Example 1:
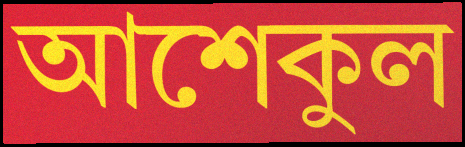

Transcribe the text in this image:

আশেকুল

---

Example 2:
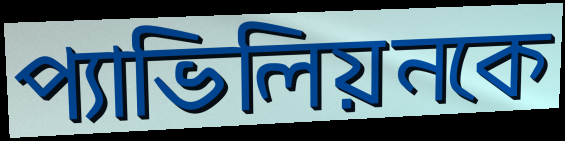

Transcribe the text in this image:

প্যাভিলিয়নকে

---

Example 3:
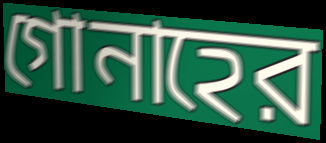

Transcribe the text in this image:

গোনাহের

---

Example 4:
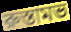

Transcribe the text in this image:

রুস্তামভ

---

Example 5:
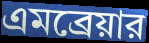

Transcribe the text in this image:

এমব্রেয়ার